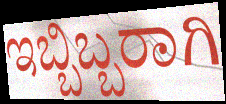
ಇಬ್ಬಿಬ್ಬರಾಗಿ